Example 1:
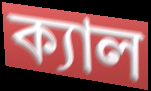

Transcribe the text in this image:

ক্যাল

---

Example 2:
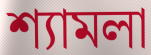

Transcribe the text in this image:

শ্যামলা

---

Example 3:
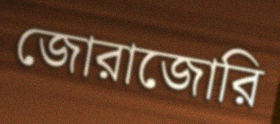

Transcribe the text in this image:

জোরাজোরি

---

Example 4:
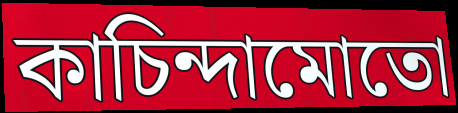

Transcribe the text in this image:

কাচিন্দামোতো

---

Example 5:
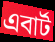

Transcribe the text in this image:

এবার্ট